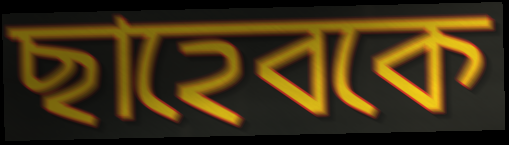
ছাহেবকে